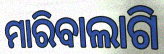
ମାରିବାଲାଗି